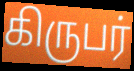
கிருபர்